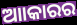
ଆାକାରର